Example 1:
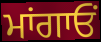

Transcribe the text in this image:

ਮਾਂਗਾਓਂ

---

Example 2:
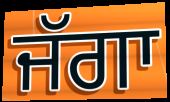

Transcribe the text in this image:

ਜੱਗਾ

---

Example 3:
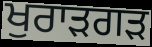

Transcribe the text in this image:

ਖੁਰਾੜਗੜ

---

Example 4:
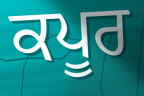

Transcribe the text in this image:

ਕਪੂਰ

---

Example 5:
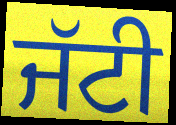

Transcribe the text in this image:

ਜੱਟੀ